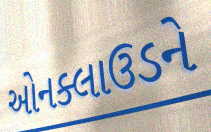
ઓનક્લાઉડને